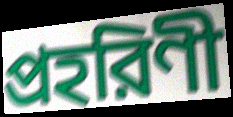
প্রহরিণী